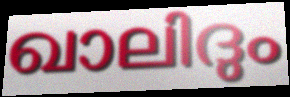
ഖാലിദും